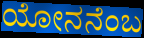
ಯೋನನೆಂಬ